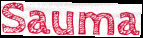
Sauma